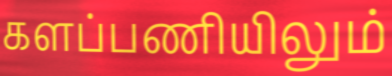
களப்பணியிலும்